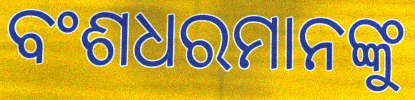
ବଂଶଧରମାନଙ୍କୁ